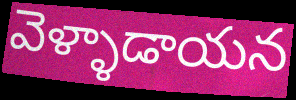
వెళ్ళాడాయన